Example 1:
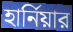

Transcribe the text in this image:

হার্নিয়ার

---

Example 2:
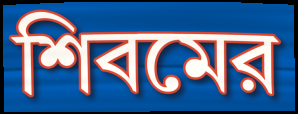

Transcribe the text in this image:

শিবমের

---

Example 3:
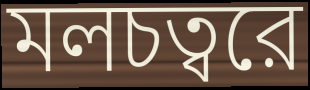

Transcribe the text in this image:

মলচত্বরে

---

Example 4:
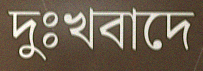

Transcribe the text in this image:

দুঃখবাদে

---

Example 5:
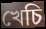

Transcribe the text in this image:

খেচি